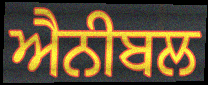
ਐਨੀਬਲ